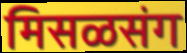
मिसळसंग